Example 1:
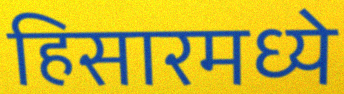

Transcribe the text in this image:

हिसारमध्ये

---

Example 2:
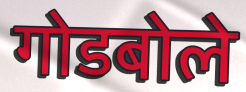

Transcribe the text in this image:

गोडबोले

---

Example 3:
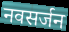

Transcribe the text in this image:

नवसर्जन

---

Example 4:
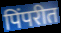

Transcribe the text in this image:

पिंपरीत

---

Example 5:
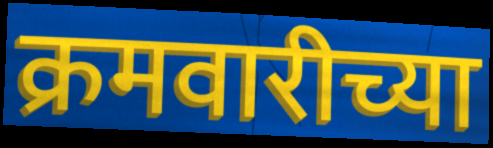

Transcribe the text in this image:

क्रमवारीच्या